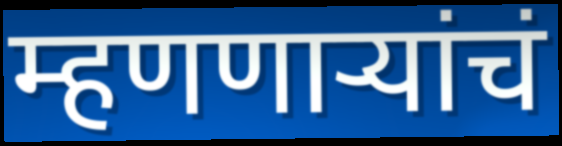
म्हणणाऱ्यांचं